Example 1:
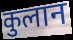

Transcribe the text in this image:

कुलान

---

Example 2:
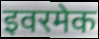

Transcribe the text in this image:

इवरमेक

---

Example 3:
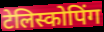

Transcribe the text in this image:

टेलिस्कोपिंग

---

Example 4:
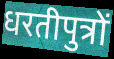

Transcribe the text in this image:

धरतीपुत्रों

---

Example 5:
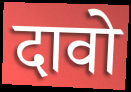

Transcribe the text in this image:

दावो